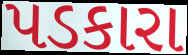
પડકારા